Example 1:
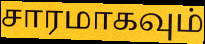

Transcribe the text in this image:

சாரமாகவும்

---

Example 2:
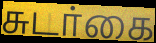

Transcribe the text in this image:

சுடர்கை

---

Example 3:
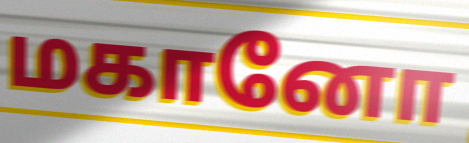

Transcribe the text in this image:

மகானோ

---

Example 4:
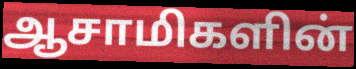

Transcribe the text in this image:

ஆசாமிகளின்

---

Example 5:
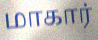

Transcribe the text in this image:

மாகார்